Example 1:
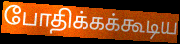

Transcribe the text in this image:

போதிக்கக்கூடிய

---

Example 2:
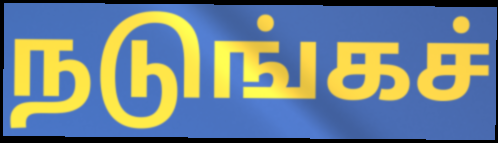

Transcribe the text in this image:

நடுங்கச்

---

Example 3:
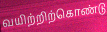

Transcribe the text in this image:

வயிற்றிற்கொண்டு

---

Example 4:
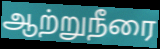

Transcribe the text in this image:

ஆற்றுநீரை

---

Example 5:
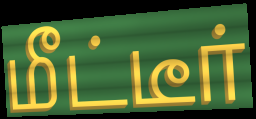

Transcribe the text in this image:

மீட்டீர்